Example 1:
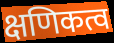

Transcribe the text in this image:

क्षणिकत्व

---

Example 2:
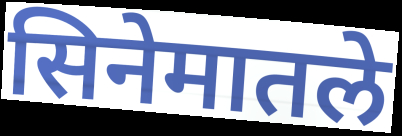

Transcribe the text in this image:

सिनेमातले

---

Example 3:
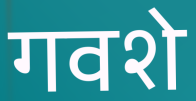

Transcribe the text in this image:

गवशे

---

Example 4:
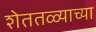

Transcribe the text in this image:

शेततळ्याच्या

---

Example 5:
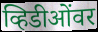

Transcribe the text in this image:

व्हिडीओंवर